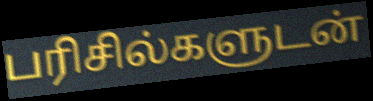
பரிசில்களுடன்